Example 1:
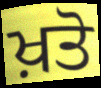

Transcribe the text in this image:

ਖ਼ਤੋ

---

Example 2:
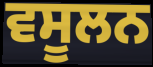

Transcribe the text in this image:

ਵਸੂਲਨ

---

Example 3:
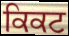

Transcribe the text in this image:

ਕਿਕਟ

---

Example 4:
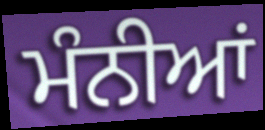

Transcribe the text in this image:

ਮੰਨੀਆਂ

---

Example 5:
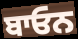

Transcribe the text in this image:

ਬਾਓਨ